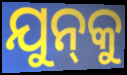
ଯୁନ୍‍କୁ